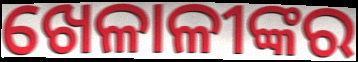
ଖେଳାଳୀଙ୍କର